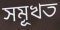
সমূখত